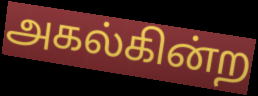
அகல்கின்ற